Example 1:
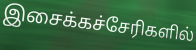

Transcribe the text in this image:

இசைக்கச்சேரிகளில்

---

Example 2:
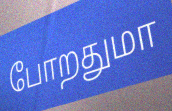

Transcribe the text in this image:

போறதுமா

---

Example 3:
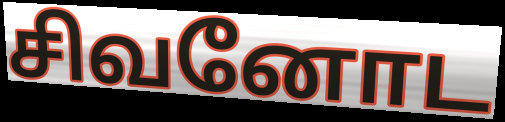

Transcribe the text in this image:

சிவனோட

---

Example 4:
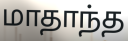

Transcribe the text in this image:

மாதாந்த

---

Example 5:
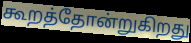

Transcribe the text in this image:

கூறத்தோன்றுகிறது